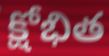
క్షోభిత